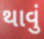
થાવું